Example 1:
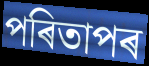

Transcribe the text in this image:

পৰিতাপৰ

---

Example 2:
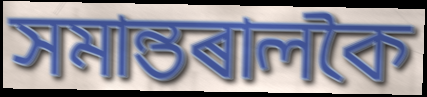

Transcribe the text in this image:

সমান্তৰালকৈ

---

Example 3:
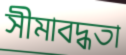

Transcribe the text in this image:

সীমাবদ্ধতা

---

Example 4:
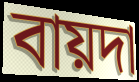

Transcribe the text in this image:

বায়দা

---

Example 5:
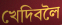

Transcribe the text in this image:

খেদিবলৈ